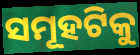
ସମୂହଟିକୁ